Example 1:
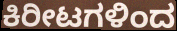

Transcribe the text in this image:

ಕಿರೀಟಗಳಿಂದ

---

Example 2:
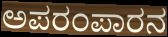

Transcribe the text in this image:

ಅಪರಂಪಾರನ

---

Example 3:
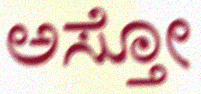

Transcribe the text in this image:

ಅಸ್ತೋ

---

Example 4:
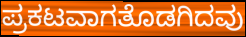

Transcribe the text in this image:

ಪ್ರಕಟವಾಗತೊಡಗಿದವು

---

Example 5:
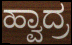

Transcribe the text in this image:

ಹ್ವಾದ್ರ